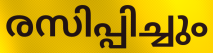
രസിപ്പിച്ചും